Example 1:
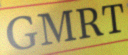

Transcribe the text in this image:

GMRT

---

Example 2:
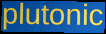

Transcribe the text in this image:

plutonic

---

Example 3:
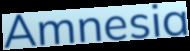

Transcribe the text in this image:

Amnesia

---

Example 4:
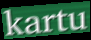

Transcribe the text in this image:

kartu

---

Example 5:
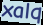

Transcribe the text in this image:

xalq